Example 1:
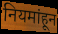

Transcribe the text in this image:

नियमांहून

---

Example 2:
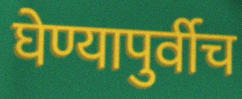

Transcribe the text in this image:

घेण्यापुर्वीच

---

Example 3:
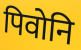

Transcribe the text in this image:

पिवोनि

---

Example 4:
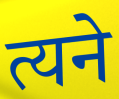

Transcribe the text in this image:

त्यने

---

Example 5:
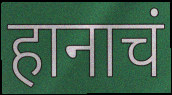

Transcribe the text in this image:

हानाचं